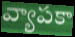
వ్యాపకా